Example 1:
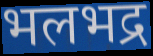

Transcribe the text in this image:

भलभद्र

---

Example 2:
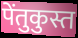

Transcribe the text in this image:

पेंतुकुस्त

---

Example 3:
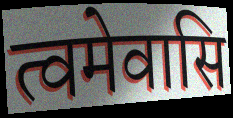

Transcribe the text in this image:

त्वमेवासि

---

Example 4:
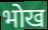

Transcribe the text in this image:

भोख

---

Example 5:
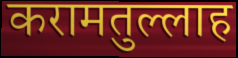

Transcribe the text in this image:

करामतुल्लाह